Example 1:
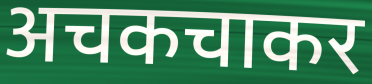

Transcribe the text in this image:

अचकचाकर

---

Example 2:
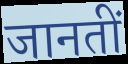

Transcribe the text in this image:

जानतीं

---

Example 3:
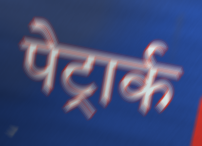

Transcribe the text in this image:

पेट्रार्क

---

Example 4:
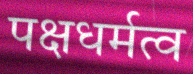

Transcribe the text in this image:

पक्षधर्मत्व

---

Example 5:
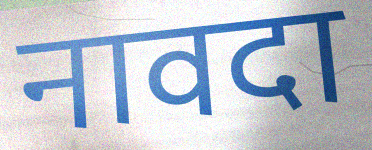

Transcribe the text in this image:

नावदा